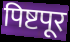
पिष्टपूर